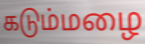
கடும்மழை